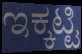
ಇಕ್ಕಟ್ಟಿ